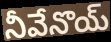
నీవేనొయ్